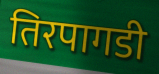
तिरपागडी